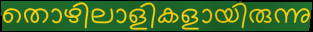
തൊഴിലാളികളായിരുന്നു